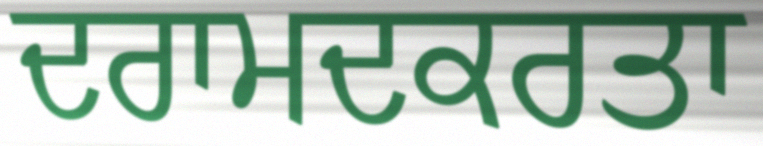
ਦਰਾਮਦਕਰਤਾ